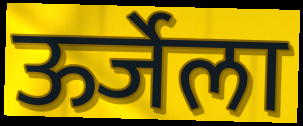
ऊर्जेला